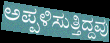
ಅಪ್ಪಳಿಸುತ್ತಿದ್ದವು